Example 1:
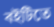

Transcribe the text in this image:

বইটিতে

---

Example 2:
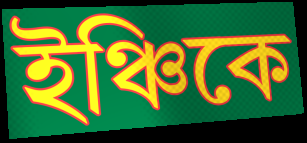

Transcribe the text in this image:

ইঞ্চিকে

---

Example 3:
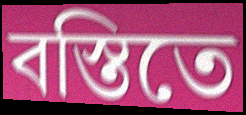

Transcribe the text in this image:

বস্তিতে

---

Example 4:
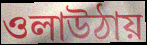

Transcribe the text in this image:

ওলাউঠায়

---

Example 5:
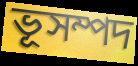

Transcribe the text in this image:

ভূসম্পদ